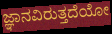
ಜ್ಞಾನವಿರುತ್ತದೆಯೋ